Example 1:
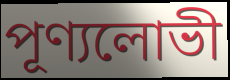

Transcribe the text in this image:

পূণ্যলোভী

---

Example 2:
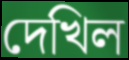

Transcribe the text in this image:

দেখিল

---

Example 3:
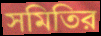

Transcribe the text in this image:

সমিতির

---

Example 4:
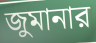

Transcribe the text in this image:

জুমানার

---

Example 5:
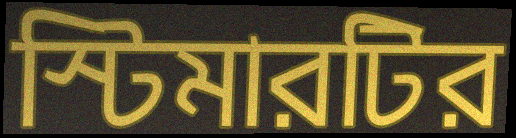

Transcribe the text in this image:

স্টিমারটির